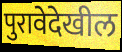
पुरावेदेखील